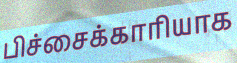
பிச்சைக்காரியாக